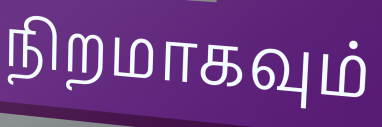
நிறமாகவும்